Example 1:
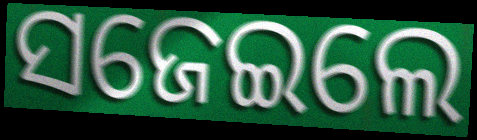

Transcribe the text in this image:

ସଜେଇଲେ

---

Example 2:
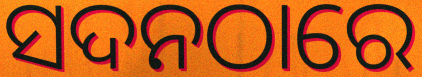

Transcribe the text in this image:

ସଦନଠାରେ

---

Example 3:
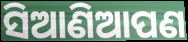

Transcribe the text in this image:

ସିଆଣିଆପଣ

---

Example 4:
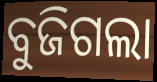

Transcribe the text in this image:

ବୁଜିଗଲା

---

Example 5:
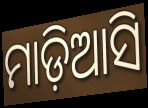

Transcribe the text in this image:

ମାଡ଼ିଆସି